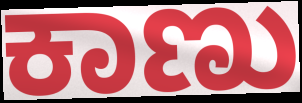
ಕಾಣು